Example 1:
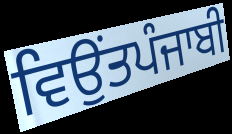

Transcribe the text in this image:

ਵਿਉਂਤਪੰਜਾਬੀ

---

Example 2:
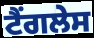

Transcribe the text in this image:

ਟੈਂਗਲੇਸ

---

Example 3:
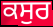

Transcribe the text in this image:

ਕਸੁਰ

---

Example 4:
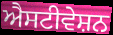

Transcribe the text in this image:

ਐਸਟੀਵੇਸ਼ਨ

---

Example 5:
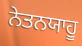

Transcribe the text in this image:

ਨੇਤਨਯਾਹੂ